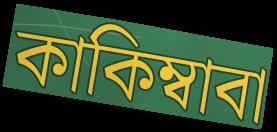
কাকিম্বাবা